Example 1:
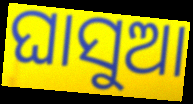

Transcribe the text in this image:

ଘାସୁଆ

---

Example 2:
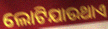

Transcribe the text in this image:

ଲୋଟିଯାଉଥାଏ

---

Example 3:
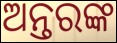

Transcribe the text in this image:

ଅନ୍ତରଙ୍କ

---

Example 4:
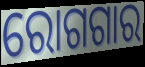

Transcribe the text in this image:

ରୋଗଗାର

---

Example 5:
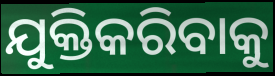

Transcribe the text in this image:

ଯୁକ୍ତିକରିବାକୁ